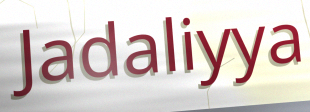
Jadaliyya